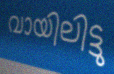
വായിലിട്ടു